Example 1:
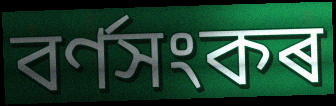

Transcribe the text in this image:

বৰ্ণসংকৰ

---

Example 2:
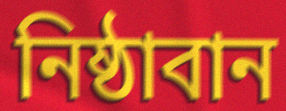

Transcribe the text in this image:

নিষ্ঠাবান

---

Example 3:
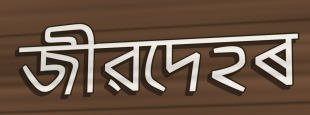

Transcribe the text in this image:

জীৱদেহৰ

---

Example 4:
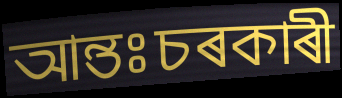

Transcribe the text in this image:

আন্তঃচৰকাৰী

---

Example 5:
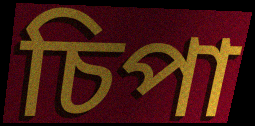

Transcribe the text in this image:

চিপা